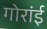
गोरांई